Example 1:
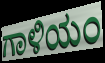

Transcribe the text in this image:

ಗಾಳಿಯಂ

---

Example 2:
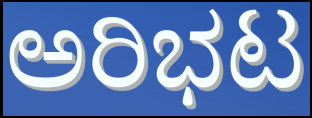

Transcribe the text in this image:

ಅರಿಭಟ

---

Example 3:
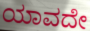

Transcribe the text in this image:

ಯಾವದೇ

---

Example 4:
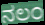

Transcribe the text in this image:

ನಲಂ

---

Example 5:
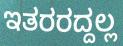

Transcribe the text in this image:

ಇತರರದ್ದಲ್ಲ